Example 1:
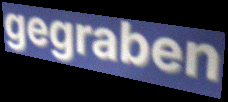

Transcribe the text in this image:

gegraben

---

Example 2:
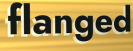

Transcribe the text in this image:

flanged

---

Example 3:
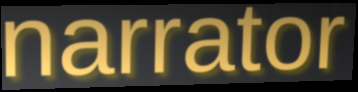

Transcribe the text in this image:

narrator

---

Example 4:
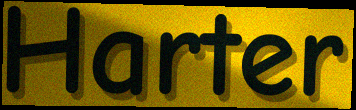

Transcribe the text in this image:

Harter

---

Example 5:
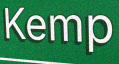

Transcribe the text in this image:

Kemp